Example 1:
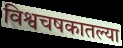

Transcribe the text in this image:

विश्वचषकातल्या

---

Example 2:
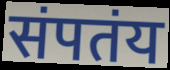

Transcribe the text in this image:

संपतंय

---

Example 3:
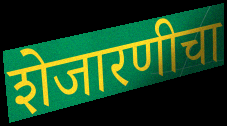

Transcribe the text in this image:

शेजारणीचा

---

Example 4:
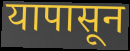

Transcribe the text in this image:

यापासून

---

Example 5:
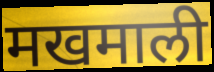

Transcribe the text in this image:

मखमाली